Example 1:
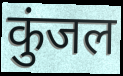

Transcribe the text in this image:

कुंजल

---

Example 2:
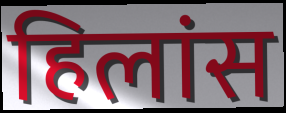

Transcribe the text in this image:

हिलांस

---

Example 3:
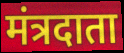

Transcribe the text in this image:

मंत्रदाता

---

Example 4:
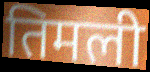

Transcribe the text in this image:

तिमली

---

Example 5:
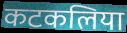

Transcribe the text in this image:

कटकलिया